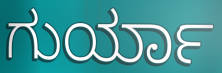
ಗುರ್ಯಾ